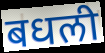
बधली